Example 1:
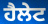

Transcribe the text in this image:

ਹੈਲੇਟ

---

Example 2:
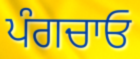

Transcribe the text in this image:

ਪੰਗਚਾਓ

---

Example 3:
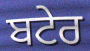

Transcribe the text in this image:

ਬਟੇਰ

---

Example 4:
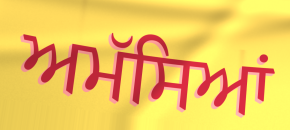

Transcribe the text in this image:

ਅਮੱਸਿਆਂ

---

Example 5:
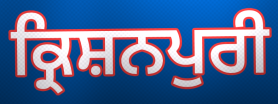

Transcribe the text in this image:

ਕ੍ਰਿਸ਼ਨਪੁਰੀ